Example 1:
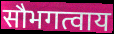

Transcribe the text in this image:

सौभगत्वाय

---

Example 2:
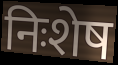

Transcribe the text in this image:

निःशेष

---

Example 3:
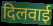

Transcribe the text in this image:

दिलवाई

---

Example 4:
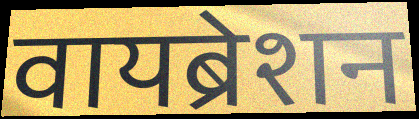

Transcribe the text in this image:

वायब्रेशन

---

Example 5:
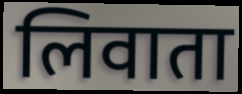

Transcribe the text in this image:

लिवाता